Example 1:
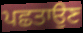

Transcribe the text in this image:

ਪਛਤਾਉਣ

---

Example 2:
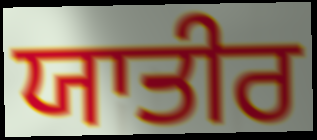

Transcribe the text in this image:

ਯਾਤੀਰ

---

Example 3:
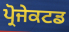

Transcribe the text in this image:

ਪ੍ਰੋਜੇਕਟਡ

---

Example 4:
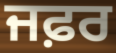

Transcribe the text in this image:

ਜਫ਼ਰ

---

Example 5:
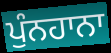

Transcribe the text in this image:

ਪੁੰਨਹਾਨਾ